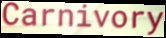
Carnivory